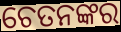
ଚେତନଙ୍କର